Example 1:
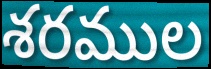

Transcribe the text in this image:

శరముల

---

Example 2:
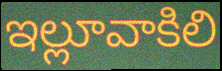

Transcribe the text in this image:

ఇల్లూవాకిలి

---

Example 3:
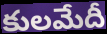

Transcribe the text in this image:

కులమేదీ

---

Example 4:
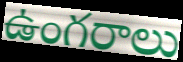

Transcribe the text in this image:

ఉంగరాలు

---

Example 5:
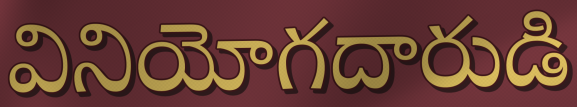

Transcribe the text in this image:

వినియోగదారుడి